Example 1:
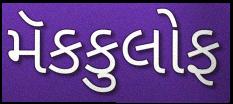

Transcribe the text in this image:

મૅકકુલોફ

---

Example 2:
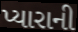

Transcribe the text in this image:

પ્યારાની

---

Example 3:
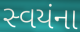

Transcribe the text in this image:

સ્વયંના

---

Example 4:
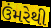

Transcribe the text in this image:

ઉંમરેથી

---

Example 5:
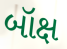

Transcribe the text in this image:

બૉક્ષ